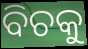
ବିଚକୁ